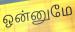
ஒன்னுமே